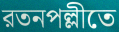
রতনপল্লীতে